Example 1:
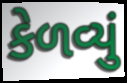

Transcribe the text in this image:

કેળવ્યું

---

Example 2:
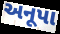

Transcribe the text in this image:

અનૂપા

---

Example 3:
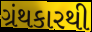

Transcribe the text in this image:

ગ્રંથકારથી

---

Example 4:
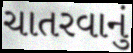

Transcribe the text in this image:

ચાતરવાનું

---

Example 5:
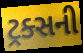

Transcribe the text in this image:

ટ્રક્સની